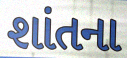
શાંતના